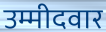
उम्मीदवार